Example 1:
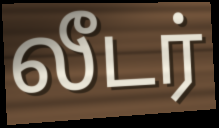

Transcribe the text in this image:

லீடர்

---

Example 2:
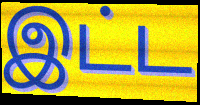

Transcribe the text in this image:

இட்ட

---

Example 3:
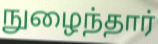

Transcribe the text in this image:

நுழைந்தார்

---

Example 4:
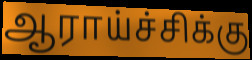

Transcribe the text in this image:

ஆராய்ச்சிக்கு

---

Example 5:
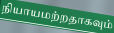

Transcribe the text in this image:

நியாயமற்றதாகவும்